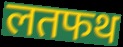
लतफथ